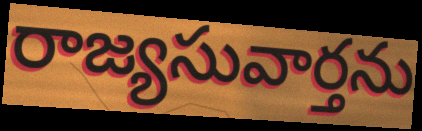
రాజ్యసువార్తను